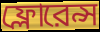
ফ্লোরেন্স